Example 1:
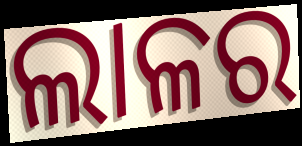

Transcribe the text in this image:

ଲାଳର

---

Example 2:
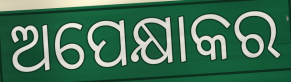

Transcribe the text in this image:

ଅପେକ୍ଷାକର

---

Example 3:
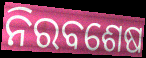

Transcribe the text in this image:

ନିରବଶେଷ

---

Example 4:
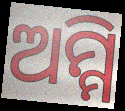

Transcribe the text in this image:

ଅମ୍ମି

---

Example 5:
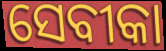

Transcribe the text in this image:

ସେବୀକା